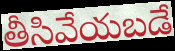
తీసివేయబడే